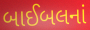
બાઈબલનાં